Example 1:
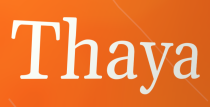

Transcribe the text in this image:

Thaya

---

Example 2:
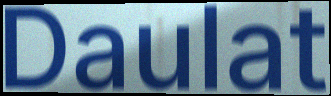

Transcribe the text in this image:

Daulat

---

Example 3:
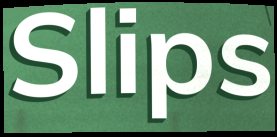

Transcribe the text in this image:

Slips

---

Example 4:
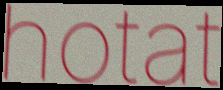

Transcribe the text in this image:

hotat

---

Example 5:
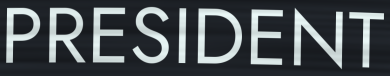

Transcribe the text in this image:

PRESIDENT